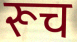
रूच